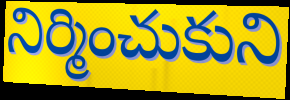
నిర్మించుకుని